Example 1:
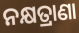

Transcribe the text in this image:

ନକ୍ଷତ୍ରାଣା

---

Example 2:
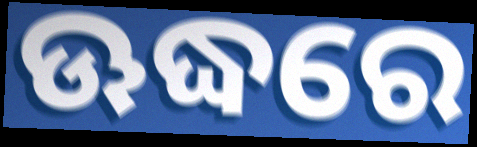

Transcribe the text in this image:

ଊଦ୍ଧରେ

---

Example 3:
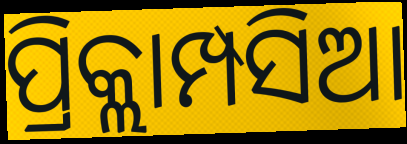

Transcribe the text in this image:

ପ୍ରିକ୍ଲାମ୍ପସିଆ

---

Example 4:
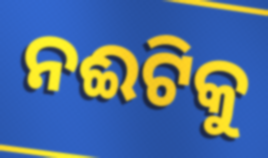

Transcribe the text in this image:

ନଈଟିକୁ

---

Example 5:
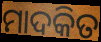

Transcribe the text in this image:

ମାଦକିତ